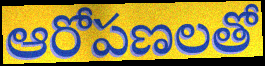
ఆరోపణలతో